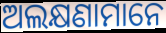
ଅଲକ୍ଷଣାମାନେ